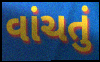
વાંચતું